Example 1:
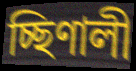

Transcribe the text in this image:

চ্ছিণালী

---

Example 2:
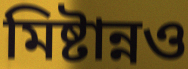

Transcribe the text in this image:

মিষ্টান্নও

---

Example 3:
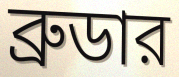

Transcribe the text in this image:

ব্রুডার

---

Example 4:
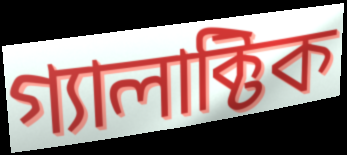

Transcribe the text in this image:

গ্যালাক্টিক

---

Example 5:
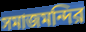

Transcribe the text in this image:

সমাজমন্দির